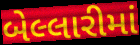
બેલ્લારીમાં